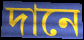
দানে